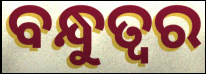
ବନ୍ଧୁତ୍ବର